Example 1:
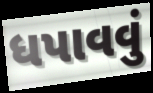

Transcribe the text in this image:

ધપાવવું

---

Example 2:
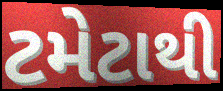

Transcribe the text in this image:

ટમેટાથી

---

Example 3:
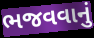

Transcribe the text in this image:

ભજવવાનું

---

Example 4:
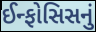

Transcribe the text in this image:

ઈન્ફોસિસનું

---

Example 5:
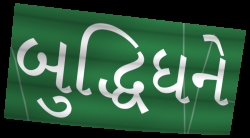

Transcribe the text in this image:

બુદ્ધિધને